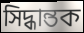
সিদ্ধান্তক